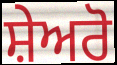
ਸ਼ੇਅਰੋ